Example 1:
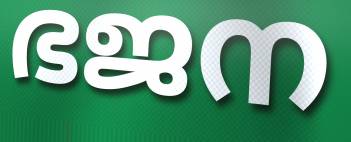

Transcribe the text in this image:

ഭജന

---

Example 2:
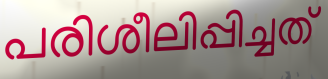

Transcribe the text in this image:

പരിശീലിപ്പിച്ചത്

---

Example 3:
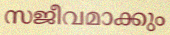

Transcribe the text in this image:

സജീവമാക്കും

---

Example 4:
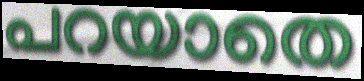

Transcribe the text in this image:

പറയാതെ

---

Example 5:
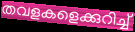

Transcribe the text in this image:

തവളകളെക്കുറിച്ച്